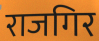
राजगिर